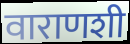
वाराणशी